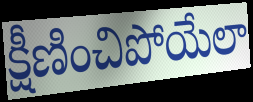
క్షీణించిపోయేలా